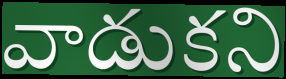
వాడుకని